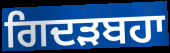
ਗਿਦੜਬਹਾ